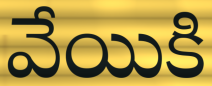
వేయికి